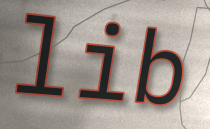
lib